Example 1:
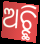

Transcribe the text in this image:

ଅଚ୍ଛି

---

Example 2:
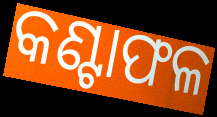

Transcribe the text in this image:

କଣ୍ଟାଫଳ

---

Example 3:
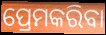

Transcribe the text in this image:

ପ୍ରେମକରିବା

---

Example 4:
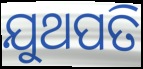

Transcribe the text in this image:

ଯୁଥପତି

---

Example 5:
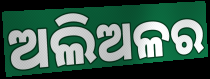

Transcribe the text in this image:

ଅଲିଅଳର